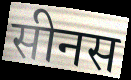
सीनस